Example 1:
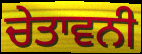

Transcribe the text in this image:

ਚੇਤਾਵਨੀ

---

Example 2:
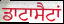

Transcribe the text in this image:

ਡਾਟਾਸੈਟਾਂ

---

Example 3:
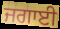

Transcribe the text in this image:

ਜਗਾਈ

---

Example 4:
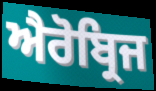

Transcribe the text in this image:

ਐਰੋਬ੍ਰਿਜ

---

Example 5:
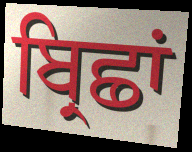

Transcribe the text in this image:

ਬ੍ਰਿਛਾਂ